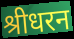
श्रीधरन